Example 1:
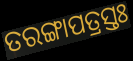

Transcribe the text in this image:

ତରଙ୍ଗାପତ୍ରସ୍ତଃ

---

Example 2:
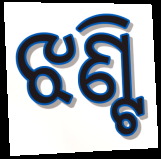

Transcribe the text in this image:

ଝଣ୍ଟି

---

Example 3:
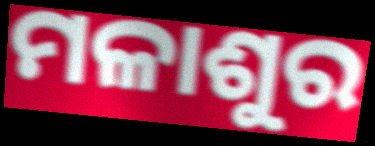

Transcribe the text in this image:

ମଳାଶୁର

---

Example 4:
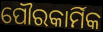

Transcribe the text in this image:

ପୌରକାର୍ମିକ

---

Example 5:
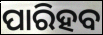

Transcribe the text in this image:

ପାରିହବ